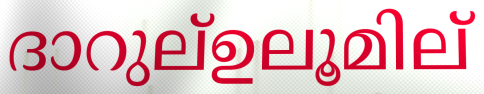
ദാറുല്ഉലൂമില്